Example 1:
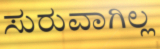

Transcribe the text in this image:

ಸುರುವಾಗಿಲ್ಲ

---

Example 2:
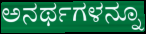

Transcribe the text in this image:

ಅನರ್ಥಗಳನ್ನೂ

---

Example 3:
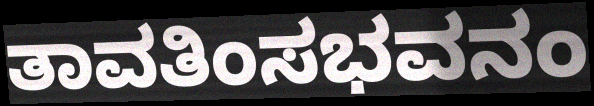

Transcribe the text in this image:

ತಾವತಿಂಸಭವನಂ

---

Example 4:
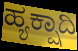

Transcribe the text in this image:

ಹ್ಯಕ್ಷಾದಿ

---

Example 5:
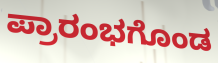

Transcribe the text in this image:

ಪ್ರಾರಂಭಗೊಂಡ